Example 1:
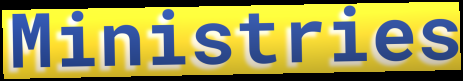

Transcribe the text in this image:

Ministries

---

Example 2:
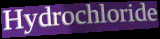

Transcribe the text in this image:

Hydrochloride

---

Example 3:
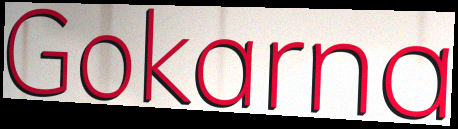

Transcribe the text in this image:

Gokarna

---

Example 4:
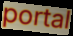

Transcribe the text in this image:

portal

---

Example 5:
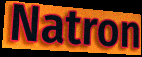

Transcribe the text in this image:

Natron